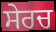
ਸੇਰਚ